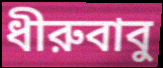
ধীরুবাবু